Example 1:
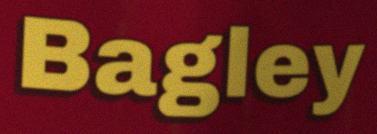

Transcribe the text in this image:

Bagley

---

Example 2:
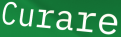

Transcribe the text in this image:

Curare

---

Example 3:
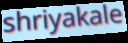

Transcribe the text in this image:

shriyakale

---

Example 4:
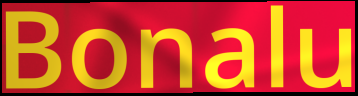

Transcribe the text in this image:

Bonalu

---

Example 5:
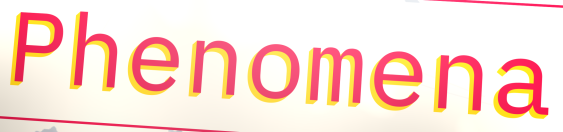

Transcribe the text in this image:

Phenomena